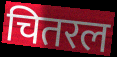
चितरल